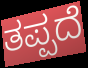
ತಪ್ಪದೆ